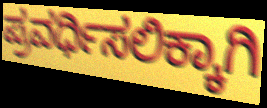
ಪ್ರವರ್ಧಿಸಲಿಕ್ಕಾಗಿ